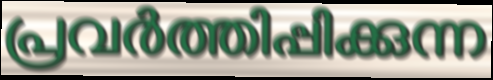
പ്രവർത്തിപ്പിക്കുന്ന